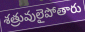
శత్రువులైపోతారు